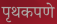
पृथकपणे